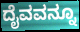
ದೈವವನ್ನೂ